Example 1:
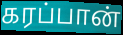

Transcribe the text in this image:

கரப்பான்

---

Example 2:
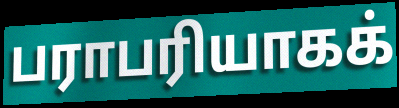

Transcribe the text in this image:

பராபரியாகக்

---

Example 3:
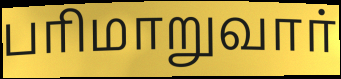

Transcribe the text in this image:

பரிமாறுவார்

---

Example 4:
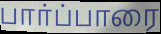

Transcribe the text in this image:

பார்ப்பாரை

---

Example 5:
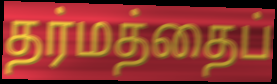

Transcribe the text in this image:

தர்மத்தைப்